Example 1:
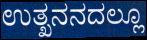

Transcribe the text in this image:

ಉತ್ಖನನದಲ್ಲೂ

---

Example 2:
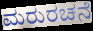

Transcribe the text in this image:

ಮರುರಚನೆ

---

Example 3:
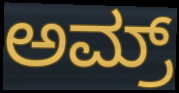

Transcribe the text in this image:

ಅಮ್ರ್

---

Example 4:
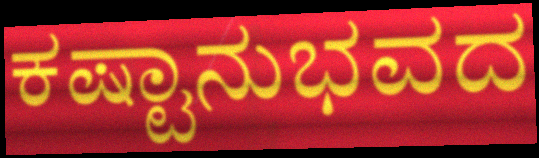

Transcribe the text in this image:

ಕಷ್ಟಾನುಭವದ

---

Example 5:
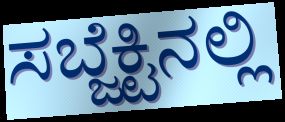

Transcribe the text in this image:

ಸಬ್ಜೆಕ್ಟಿನಲ್ಲಿ